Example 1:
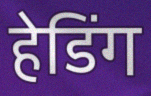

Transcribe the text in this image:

हेडिंग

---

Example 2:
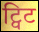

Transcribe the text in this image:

ट्विट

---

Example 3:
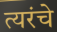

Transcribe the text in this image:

त्यरंचे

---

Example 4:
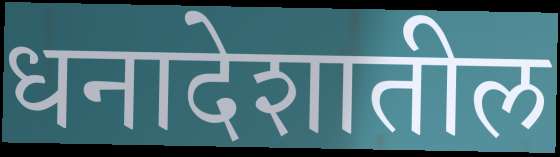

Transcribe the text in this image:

धनादेशातील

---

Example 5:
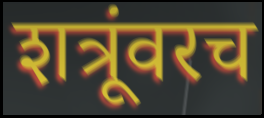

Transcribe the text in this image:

शत्रूंवरच